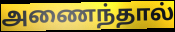
அணைந்தால்